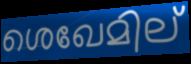
ശെഖേമില്